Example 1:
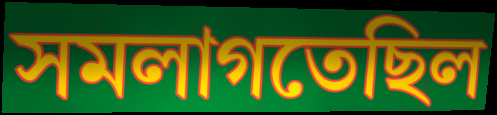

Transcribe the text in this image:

সমলাগতেছিল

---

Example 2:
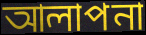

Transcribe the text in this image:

আলাপনা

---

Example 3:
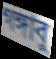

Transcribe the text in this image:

গঙ্গাবু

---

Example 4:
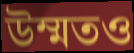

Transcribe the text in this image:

উম্মতও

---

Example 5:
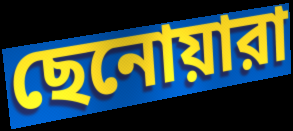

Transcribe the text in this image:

ছেনোয়ারা